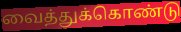
வைத்துக்கொண்டு